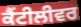
ਕੈਂਟੀਲੀਵਰ